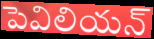
పెవిలియన్